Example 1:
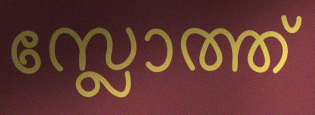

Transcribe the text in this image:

സ്ലോത്ത്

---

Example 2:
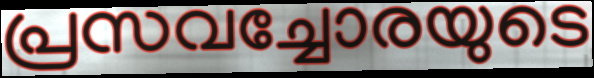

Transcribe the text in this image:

പ്രസവച്ചോരയുടെ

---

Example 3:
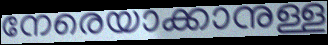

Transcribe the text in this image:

നേരെയാക്കാനുള്ള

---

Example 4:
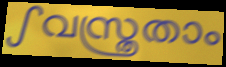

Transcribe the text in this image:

ഽവസ്ത്രതാം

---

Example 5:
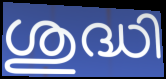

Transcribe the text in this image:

ശുദ്ധി